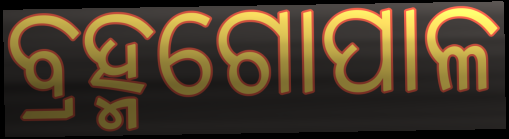
ବ୍ରହ୍ମଗୋପାଳ